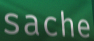
sache